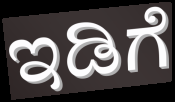
ಇಡಿಗೆ